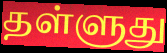
தள்ளுது